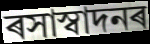
ৰসাস্বাদনৰ